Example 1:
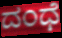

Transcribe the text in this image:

ದಂಧೆ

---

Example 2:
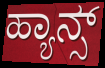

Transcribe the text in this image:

ಹ್ಯಾನ್ಸ್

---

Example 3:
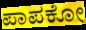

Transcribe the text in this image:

ಪಾಪಕೋ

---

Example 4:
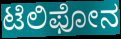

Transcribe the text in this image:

ಟೆಲಿಫೋನ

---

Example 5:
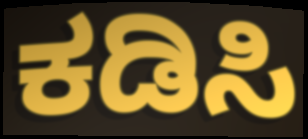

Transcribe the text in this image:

ಕಡಿಸಿ